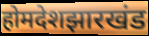
होमदेशझारखंड